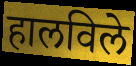
हालविले